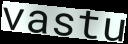
vastu